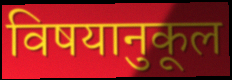
विषयानुकूल